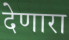
देणारा